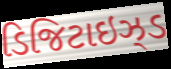
ડિજિટાઇઝ્ડ